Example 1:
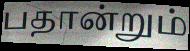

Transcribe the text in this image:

பதான்றும்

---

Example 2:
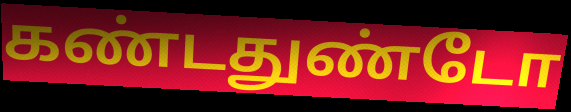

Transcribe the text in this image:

கண்டதுண்டோ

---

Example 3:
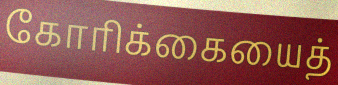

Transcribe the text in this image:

கோரிக்கையைத்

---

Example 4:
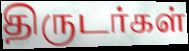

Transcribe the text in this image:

திருடர்கள்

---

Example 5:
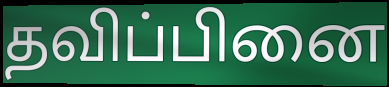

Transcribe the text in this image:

தவிப்பினை